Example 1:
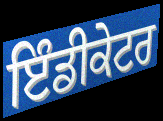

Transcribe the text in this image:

ਇੰਡੀਕੇਟਰ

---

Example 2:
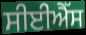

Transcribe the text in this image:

ਸੀਈਐੱਸ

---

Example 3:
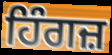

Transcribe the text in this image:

ਹਿੰਗਜ਼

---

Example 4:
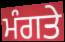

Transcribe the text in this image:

ਮੰਗਤੇ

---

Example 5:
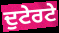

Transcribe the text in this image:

ਦੁਟੇਰਟੇ